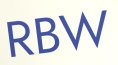
RBW